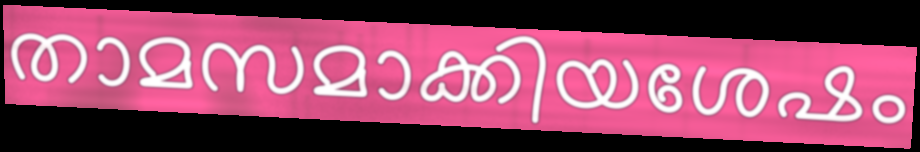
താമസമാക്കിയശേഷം